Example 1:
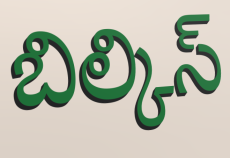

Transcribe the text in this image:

బిల్కిస్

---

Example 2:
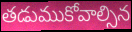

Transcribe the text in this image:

తడుముకోవాల్సిన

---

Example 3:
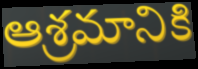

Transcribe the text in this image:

ఆశ్రమానికి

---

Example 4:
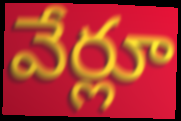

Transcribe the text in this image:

వేర్లూ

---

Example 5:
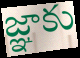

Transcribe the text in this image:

జ్ఞాకు